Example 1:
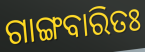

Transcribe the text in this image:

ଗାଙ୍ଗବାରିତଃ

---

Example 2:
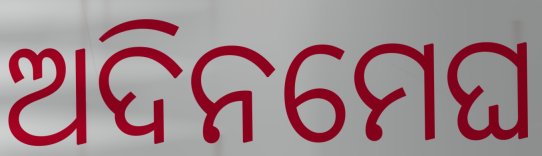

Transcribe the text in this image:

ଅଦିନମେଘ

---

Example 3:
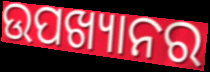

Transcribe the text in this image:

ଉପଖ୍ୟାନର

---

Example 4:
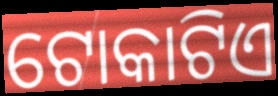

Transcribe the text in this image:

ଟୋକାଟିଏ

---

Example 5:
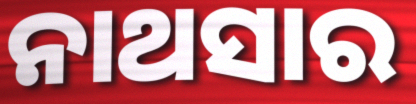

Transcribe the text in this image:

ନାଥସାର